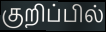
குறிப்பில்